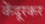
केंदूरकर